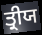
ਤ੍ਰੀਯ